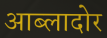
आब्लादोर